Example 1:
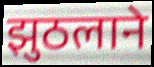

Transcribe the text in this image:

झुठलाने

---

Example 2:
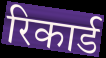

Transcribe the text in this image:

रिकार्ड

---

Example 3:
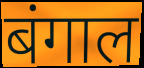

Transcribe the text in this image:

बंगाल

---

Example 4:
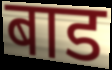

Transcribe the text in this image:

बाड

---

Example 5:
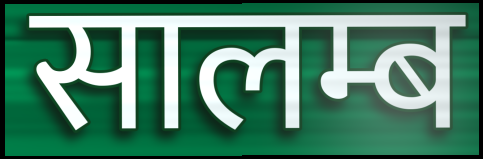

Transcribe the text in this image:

सालम्ब